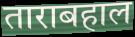
ताराबहाल